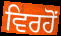
ਵਿਰਹੋਂ